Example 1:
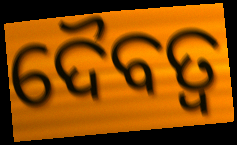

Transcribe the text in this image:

ଦୈବତ୍ଵ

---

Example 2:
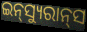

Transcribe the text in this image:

ଇନ୍‌ସ୍ୟୁରାନ୍‌ସ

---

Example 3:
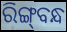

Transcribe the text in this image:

ରିଙ୍ଗ୍‌ବନ୍ଧ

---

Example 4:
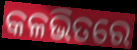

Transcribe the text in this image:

କଳଭିତରେ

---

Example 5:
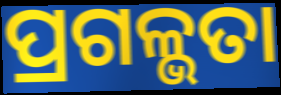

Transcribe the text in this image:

ପ୍ରଗଳ୍ଭତା